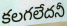
కలగలేదనీ